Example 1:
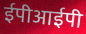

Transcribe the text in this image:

ईपीआईपी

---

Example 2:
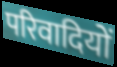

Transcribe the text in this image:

परिवादियों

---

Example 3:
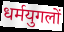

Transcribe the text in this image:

धर्मयुगलों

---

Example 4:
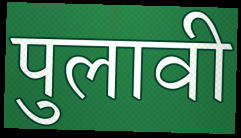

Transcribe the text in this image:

पुलावी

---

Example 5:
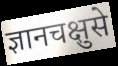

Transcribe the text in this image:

ज्ञानचक्षुसे